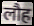
लौह